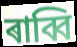
ৰাব্বি